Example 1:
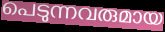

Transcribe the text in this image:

പെടുന്നവരുമായ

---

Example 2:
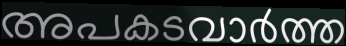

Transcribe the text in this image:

അപകടവാർത്ത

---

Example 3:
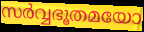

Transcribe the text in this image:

സർവ്വഭൂതമയോ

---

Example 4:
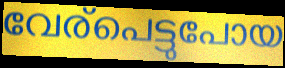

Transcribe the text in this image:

വേര്പെട്ടുപോയ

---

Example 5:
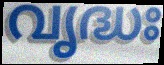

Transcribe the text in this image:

വൃദ്ധഃ